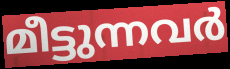
മീട്ടുന്നവർ